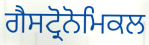
ਗੈਸਟ੍ਰੋਨੋਮਿਕਲ